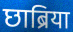
छाब्रिया